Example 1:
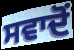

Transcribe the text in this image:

ਸਵਾਦੋਂ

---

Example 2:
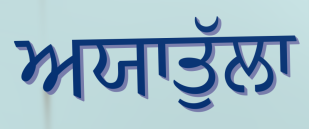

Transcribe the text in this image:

ਅਯਾਤੁੱਲਾ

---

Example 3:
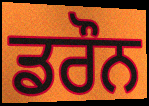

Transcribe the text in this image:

ਡਰੌਨ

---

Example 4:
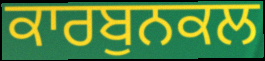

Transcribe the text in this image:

ਕਾਰਬੁਨਕਲ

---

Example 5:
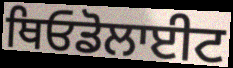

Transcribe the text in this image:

ਥਿਓਡੋਲਾਈਟ